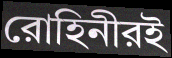
রোহিনীরই